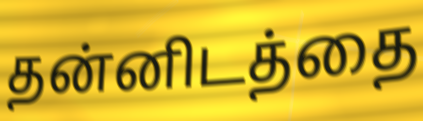
தன்னிடத்தை